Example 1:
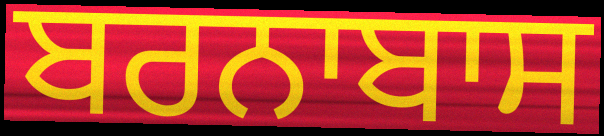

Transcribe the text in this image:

ਬਰਨਾਬਾਸ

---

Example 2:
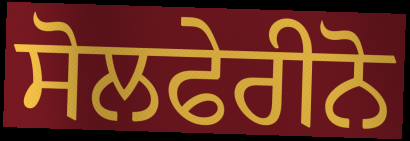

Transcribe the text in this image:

ਸੋਲਫੇਰੀਨੋ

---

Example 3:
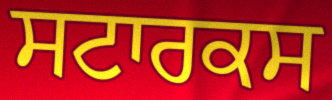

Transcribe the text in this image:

ਸਟਾਰਕਸ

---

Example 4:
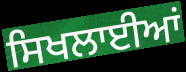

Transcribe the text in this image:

ਸਿਖਲਾਈਆਂ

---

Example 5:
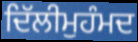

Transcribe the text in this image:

ਦਿੱਲੀਮੁਹੰਮਦ